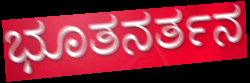
ಭೂತನರ್ತನ